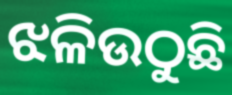
ଝଳିଉଠୁଛି